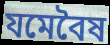
যমেবৈষ